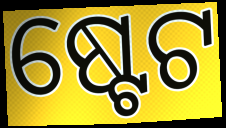
ଷ୍ଟେଟ